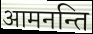
आमनन्ति